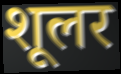
शूलर